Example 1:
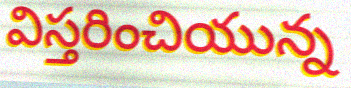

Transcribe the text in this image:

విస్తరించియున్న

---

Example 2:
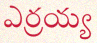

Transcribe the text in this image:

ఎర్రయ్య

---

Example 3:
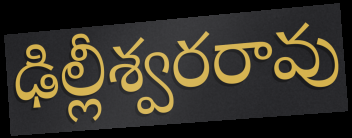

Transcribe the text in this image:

ఢిల్లీశ్వరరావు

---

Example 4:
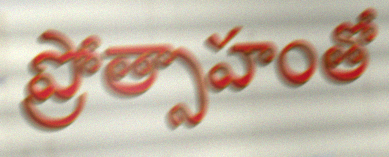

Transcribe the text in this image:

ప్రోత్సాహంతో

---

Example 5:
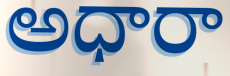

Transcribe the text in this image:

అధారా